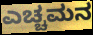
ಎಚ್ಚಮನ